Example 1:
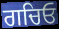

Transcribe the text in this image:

ਗਚਿਓ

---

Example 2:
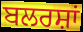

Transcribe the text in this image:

ਬਲਰਸ਼ਾਂ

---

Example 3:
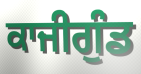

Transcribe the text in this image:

ਕਾਜੀਗੁੰਡ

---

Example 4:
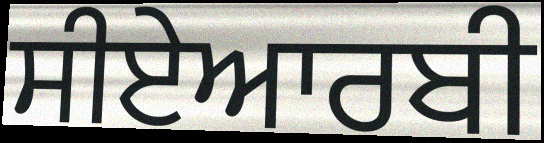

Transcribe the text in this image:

ਸੀਏਆਰਬੀ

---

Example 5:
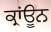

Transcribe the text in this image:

ਕ੍ਰਾਂਊਨ